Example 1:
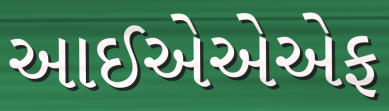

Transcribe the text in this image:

આઈએએએફ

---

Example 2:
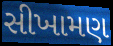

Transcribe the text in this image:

સીખામણ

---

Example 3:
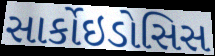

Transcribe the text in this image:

સાર્કોઇડોસિસ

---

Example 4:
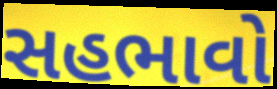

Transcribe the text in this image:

સહભાવો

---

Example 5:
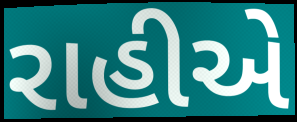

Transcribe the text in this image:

રાહીએ